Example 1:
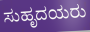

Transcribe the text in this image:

ಸುಹೃದಯರು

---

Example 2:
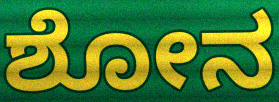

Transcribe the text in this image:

ಶೋನ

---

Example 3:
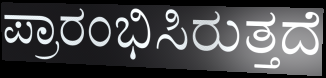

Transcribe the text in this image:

ಪ್ರಾರಂಭಿಸಿರುತ್ತದೆ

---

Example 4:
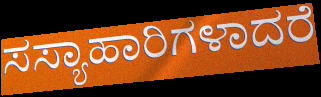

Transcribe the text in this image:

ಸಸ್ಯಾಹಾರಿಗಳಾದರೆ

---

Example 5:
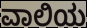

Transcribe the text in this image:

ವಾಲಿಯ